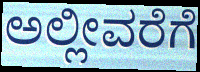
ಅಲ್ಲೀವರೆಗೆ